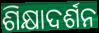
ଶିକ୍ଷାଦର୍ଶନ